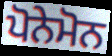
ਪੋਨੇਮੋਨ